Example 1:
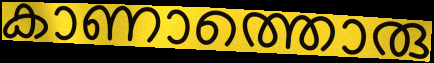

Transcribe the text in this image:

കാണാത്തൊരു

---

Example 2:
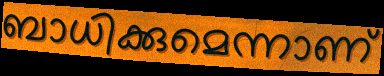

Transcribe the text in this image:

ബാധിക്കുമെന്നാണ്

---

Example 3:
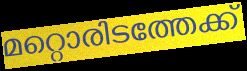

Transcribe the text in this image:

മറ്റൊരിടത്തേക്ക്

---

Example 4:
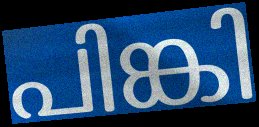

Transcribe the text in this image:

പിങ്കി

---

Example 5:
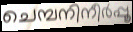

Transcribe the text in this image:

ചെമ്പനിനീർപ്പൂ